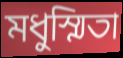
মধুস্মিতা